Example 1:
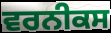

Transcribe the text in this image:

ਵਰਨੀਕਸ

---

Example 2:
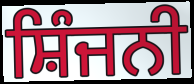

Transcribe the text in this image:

ਸ਼ਿੰਜਨੀ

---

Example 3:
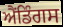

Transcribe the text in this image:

ਐਂਡਿੰਗਸ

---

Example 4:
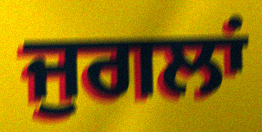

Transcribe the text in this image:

ਜੁਗਲਾਂ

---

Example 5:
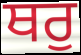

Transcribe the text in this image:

ਥਰੁ